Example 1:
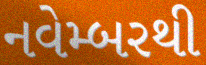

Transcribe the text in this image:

નવેમ્બરથી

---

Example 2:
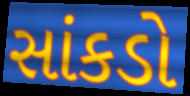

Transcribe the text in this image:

સાંકડો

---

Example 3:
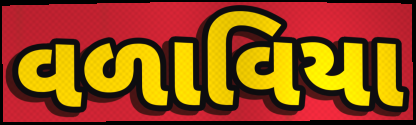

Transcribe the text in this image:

વળાવિયા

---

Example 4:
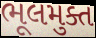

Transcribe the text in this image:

ભૂલમુક્ત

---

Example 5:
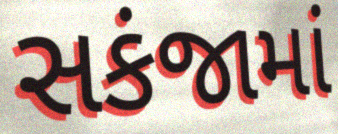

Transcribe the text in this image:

સકંજામાં